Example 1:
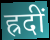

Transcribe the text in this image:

ह्रदीं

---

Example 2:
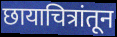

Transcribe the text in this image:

छायाचित्रांतून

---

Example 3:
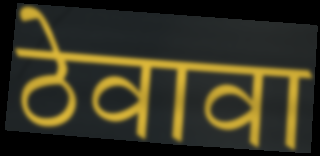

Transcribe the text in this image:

ठेवावा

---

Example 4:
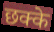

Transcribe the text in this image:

छक्के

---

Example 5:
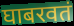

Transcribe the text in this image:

घाबरवतं